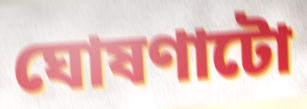
ঘোষণাটো